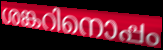
ശങ്കറിനൊപ്പം